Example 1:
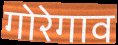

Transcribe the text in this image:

गोरेगाव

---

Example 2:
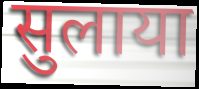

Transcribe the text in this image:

सुलाया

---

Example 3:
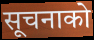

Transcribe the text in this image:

सूचनाको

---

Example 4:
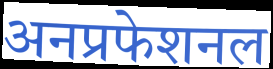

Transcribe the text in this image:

अनप्रफेशनल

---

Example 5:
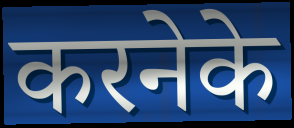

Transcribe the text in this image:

करनेके